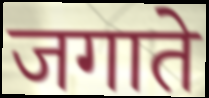
जगाते